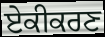
ਏਕੀਕਰਣ